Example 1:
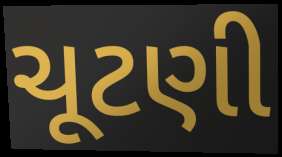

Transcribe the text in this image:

ચૂટણી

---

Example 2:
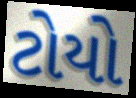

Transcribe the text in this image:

ટોયો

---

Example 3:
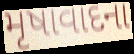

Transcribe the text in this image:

મૃષાવાદના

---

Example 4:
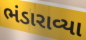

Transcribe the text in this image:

ભંડારાવ્યા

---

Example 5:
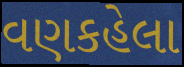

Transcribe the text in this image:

વણકહેલા